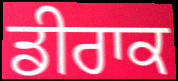
ਡੀਰਾਕ